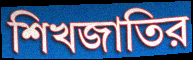
শিখজাতির